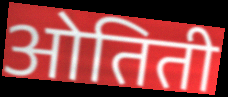
ओतिती